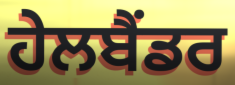
ਹੇਲਬੈਂਡਰ